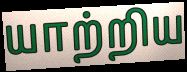
யாற்றிய